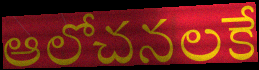
ఆలోచనలకే